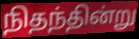
நிதந்தின்று